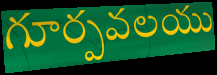
గూర్పవలయు